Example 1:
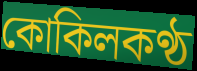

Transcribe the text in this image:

কোকিলকণ্ঠ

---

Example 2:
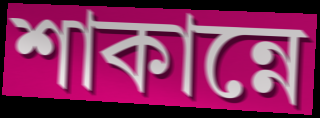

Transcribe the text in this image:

শাকান্নে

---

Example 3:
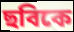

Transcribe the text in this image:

ছবিকে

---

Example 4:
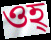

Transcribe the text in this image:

ওহ্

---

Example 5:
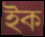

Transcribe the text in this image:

ইক